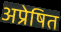
अप्रेषित